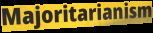
Majoritarianism